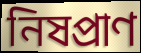
নিষপ্রাণ